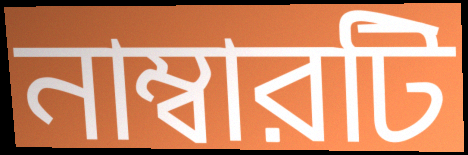
নাম্বারটি